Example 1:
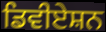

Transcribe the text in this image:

ਡਿਵੀਏਸ਼ਨ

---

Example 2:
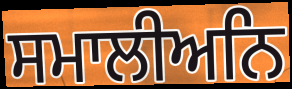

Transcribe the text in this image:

ਸਮਾਲੀਅਨਿ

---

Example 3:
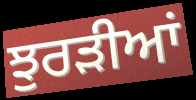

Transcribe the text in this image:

ਝੁਰੜੀਆਂ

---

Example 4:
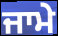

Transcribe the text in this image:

ਜਾਮੇ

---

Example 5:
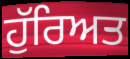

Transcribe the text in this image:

ਹੁੱਰਿਅਤ